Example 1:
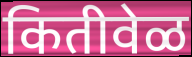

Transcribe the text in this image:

कितीवेळ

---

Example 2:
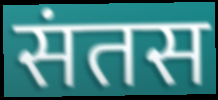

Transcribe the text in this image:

संतस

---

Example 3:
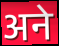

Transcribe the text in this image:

अने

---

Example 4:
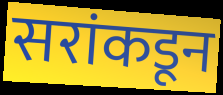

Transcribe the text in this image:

सरांकडून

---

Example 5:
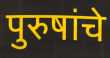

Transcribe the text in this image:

पुरुषांचे